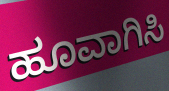
ಹೂವಾಗಿಸಿ